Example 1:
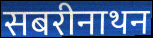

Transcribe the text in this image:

सबरीनाथन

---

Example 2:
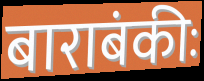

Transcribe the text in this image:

बाराबंकीः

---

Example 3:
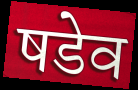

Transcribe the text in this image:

षडेव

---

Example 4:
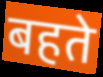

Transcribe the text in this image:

बहते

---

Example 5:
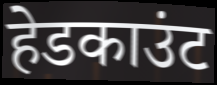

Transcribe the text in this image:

हेडकाउंट